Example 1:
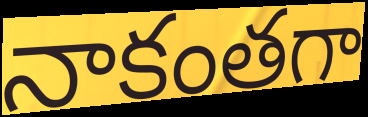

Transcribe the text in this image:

నాకంతగా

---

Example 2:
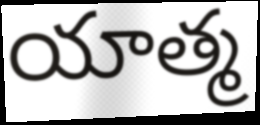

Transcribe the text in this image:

యాత్మ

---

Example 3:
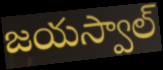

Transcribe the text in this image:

జయస్వాల్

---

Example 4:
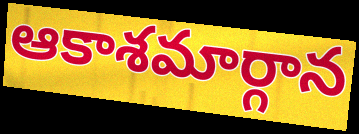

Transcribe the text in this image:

ఆకాశమార్గాన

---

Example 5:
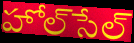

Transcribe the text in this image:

హోల్‌సేల్